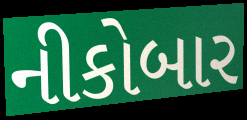
નીકોબાર